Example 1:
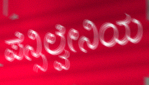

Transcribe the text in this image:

ಪೆನ್ಸಿಲ್ವೇನಿಯ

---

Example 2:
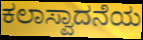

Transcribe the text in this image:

ಕಲಾಸ್ವಾದನೆಯ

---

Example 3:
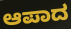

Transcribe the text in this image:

ಆಪಾದ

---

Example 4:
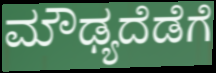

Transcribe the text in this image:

ಮೌಢ್ಯದೆಡೆಗೆ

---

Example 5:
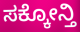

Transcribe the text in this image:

ಸಕ್ಕೋನ್ತಿ